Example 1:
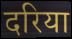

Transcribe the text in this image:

दरिया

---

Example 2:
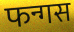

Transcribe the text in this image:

फन्गस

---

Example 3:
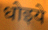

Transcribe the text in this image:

धोइये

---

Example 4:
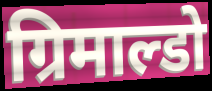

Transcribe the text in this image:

ग्रिमाल्डो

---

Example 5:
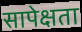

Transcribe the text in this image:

सापेक्षता